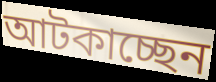
আটকাচ্ছেন